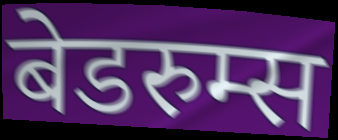
बेडरुम्स